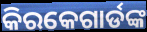
କିରକେଗାର୍ଡଙ୍କ